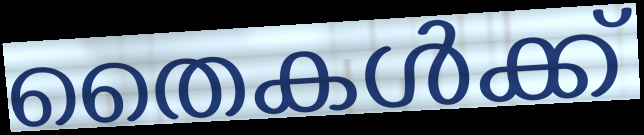
തൈകൾക്ക്